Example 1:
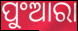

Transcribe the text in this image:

ପୁଂଆରା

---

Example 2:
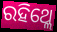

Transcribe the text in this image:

ରହିଥ୍ଲେ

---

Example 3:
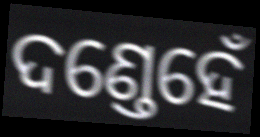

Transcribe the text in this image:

ଦଣ୍ଡେହେଁ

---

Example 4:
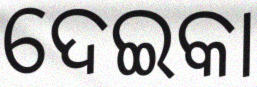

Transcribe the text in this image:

ଦେଇକା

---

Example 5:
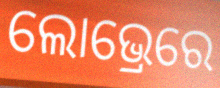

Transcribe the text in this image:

ଲୋଭ୍ରେରେ